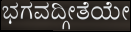
ಭಗವದ್ಗೀತೆಯೇ